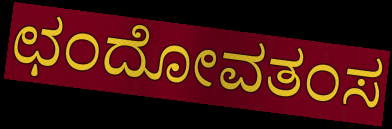
ಛಂದೋವತಂಸ